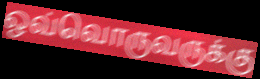
ஒவ்வொருவருக்கு